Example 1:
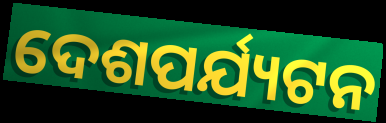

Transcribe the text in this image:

ଦେଶପର୍ଯ୍ୟଟନ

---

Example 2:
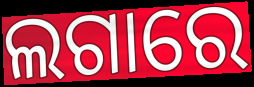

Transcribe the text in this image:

ଲଗାରେ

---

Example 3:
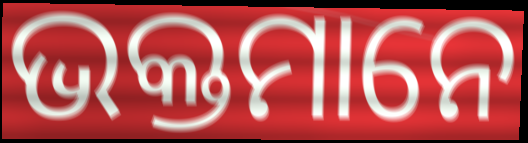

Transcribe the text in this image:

ଭକ୍ତମାନେ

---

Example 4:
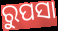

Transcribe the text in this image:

ରୁପସା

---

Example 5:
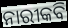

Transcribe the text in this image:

ନାରୀକବି